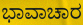
ಭಾವಾಚಾರ